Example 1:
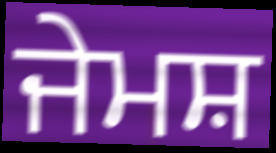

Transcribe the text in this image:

ਜੇਮਸ਼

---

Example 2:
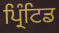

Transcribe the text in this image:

ਪ੍ਰਿੰਟਿਡ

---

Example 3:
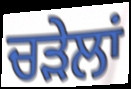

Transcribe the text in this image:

ਚੜੇਲਾਂ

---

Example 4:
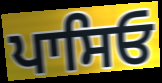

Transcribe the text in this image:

ਪਾਸਿਓ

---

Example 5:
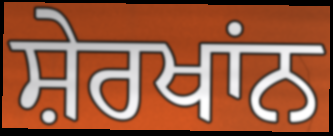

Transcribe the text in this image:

ਸ਼ੇਰਖਾਂਨ